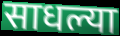
साधल्या